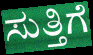
ಸುತ್ತಿಗೆ